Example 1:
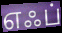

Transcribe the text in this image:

எஃப்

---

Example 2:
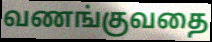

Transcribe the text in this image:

வணங்குவதை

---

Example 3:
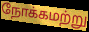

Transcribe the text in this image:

நோக்கமற்று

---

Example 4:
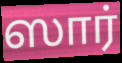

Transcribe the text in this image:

ஸார்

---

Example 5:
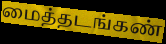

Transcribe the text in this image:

மைத்தடங்கண்